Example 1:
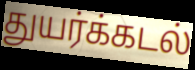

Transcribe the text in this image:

துயர்க்கடல்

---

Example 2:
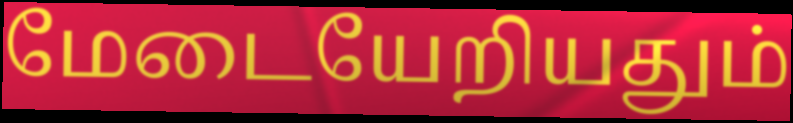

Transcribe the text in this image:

மேடையேறியதும்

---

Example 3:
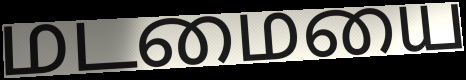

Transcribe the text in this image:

மடமையை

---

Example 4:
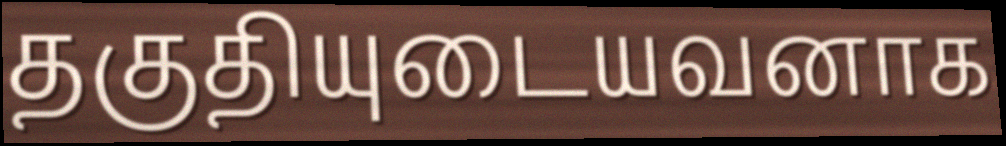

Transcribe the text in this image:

தகுதியுடையவனாக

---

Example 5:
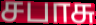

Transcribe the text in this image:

சபாசு